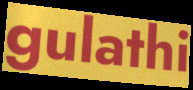
gulathi